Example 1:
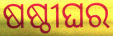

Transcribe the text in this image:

ଷଷ୍ଠୀଘର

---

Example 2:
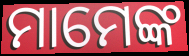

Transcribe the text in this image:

ମାମେଙ୍କ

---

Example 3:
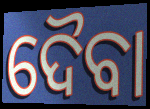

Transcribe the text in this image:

ଦୈବା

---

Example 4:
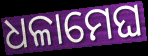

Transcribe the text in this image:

ଧଳାମେଘ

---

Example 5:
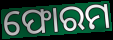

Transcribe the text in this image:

ଫୋରମ